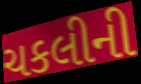
ચકલીની